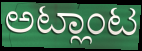
ಅಟ್ಲಾಂಟ